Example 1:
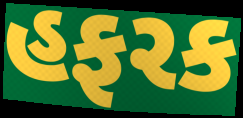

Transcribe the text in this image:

હફરક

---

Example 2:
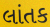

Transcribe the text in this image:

લાંતક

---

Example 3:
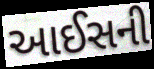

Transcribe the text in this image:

આઈસની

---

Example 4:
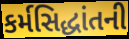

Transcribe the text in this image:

કર્મસિદ્ધાંતની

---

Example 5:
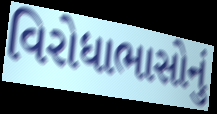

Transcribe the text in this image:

વિરોધાભાસોનું